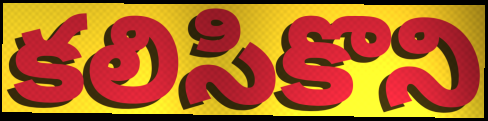
కలిసికొని